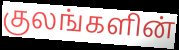
குலங்களின்